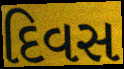
દિવસ